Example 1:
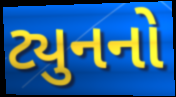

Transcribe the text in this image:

ટ્યુનનો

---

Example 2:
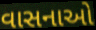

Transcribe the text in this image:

વાસનાઓ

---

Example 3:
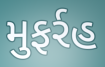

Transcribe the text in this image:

મુફર્રહ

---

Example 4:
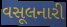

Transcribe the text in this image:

વસૂલનારી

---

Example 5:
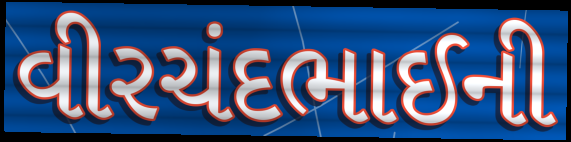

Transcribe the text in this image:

વીરચંદભાઈની